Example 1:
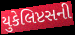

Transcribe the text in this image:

યુકેલિપ્ટસની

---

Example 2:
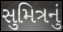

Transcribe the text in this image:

સુમિત્રનું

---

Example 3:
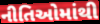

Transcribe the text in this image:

નીતિઓમાંથી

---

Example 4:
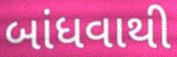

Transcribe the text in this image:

બાંધવાથી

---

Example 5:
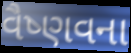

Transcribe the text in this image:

વૈષ્ણવના